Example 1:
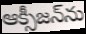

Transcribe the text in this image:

ఆక్సీజన్‌ను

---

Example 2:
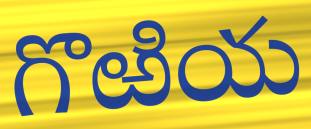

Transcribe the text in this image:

గొఱియ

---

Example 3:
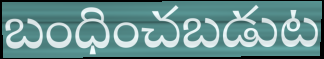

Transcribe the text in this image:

బంధించబడుట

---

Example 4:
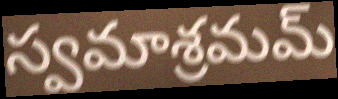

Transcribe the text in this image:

స్వమాశ్రమమ్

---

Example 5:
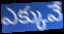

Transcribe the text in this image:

ఎక్కువే